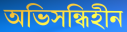
অভিসন্ধিহীন